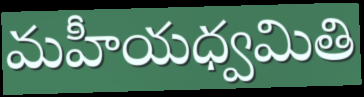
మహీయధ్వమితి